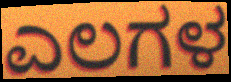
ಎಲಗಳ